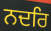
ਨਦਰਿ